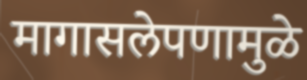
मागासलेपणामुळे